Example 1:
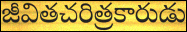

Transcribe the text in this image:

జీవితచరిత్రకారుడు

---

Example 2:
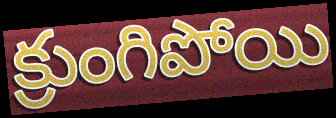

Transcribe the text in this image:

క్రుంగిపోయి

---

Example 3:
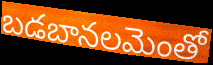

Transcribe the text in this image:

బడబానలమెంతో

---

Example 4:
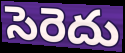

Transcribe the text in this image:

సెరెదు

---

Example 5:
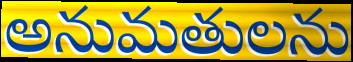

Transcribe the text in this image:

అనుమతులను